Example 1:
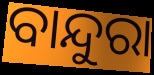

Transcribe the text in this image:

ବାନ୍ଦୁରା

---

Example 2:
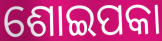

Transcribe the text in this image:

ଶୋଇପକା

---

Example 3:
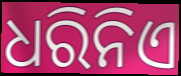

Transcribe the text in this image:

ଧରିନିଏ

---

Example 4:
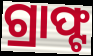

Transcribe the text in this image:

ଗ୍ରାଫ୍ଟ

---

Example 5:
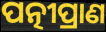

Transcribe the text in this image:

ପତ୍ନୀପ୍ରାଣ